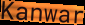
Kanwar